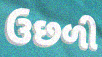
ઉછળી